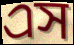
এস